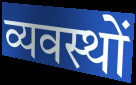
व्यवस्थों